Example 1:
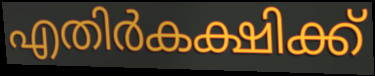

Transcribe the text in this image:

എതിർകക്ഷിക്ക്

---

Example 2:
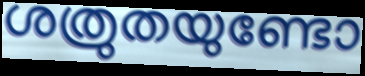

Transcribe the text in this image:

ശത്രുതയുണ്ടോ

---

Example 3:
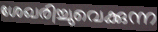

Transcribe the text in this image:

ശേഖരിച്ചുവെക്കുന്ന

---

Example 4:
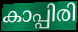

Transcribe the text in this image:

കാപ്പിരി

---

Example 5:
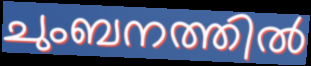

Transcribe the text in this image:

ചുംബനത്തിൽ